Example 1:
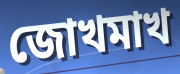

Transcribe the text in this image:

জোখমাখ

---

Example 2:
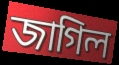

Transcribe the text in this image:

জাগিল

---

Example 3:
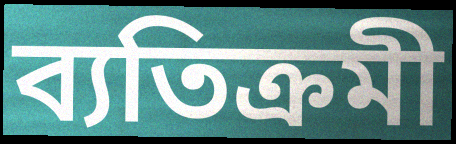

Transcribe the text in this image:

ব্যতিক্ৰমী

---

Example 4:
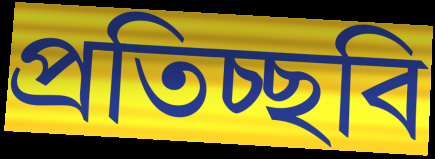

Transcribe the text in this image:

প্ৰতিচ্ছবি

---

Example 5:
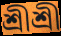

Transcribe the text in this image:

শ্ৰীশ্ৰী